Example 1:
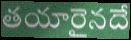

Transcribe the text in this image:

తయారైనదే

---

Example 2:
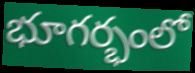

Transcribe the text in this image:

భూగర్భంలో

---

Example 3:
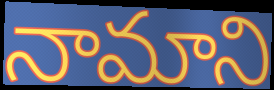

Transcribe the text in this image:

నామాని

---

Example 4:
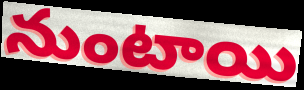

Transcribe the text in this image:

నుంటాయి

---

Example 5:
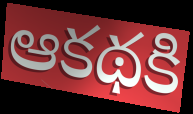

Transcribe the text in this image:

ఆకథకి